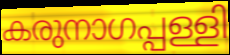
കരുനാഗപ്പള്ളി